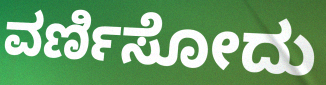
ವರ್ಣಿಸೋದು